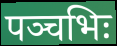
पञ्चभिः